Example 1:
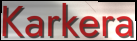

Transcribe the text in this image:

Karkera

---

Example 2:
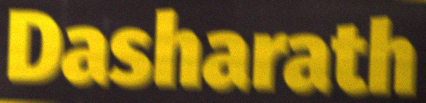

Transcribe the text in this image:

Dasharath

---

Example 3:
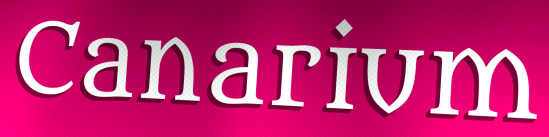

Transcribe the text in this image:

Canarium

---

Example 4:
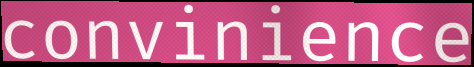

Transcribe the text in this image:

convinience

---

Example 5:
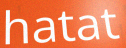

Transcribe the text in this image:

hatat